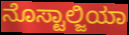
ನೊಸ್ಟಾಲ್ಜಿಯಾ